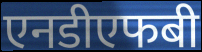
एनडीएफबी